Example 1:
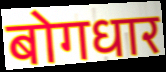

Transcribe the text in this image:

बोगधार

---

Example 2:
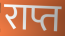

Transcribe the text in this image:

राप्त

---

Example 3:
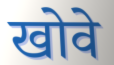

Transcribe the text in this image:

खोवे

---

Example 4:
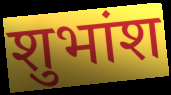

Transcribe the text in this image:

शुभांश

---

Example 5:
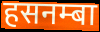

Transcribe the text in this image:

हसनम्बा